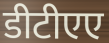
डीटीएए